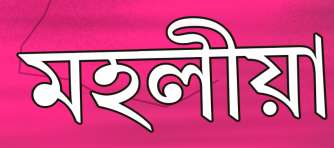
মহলীয়া